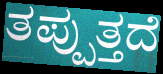
ತಪ್ಪುತ್ತದೆ